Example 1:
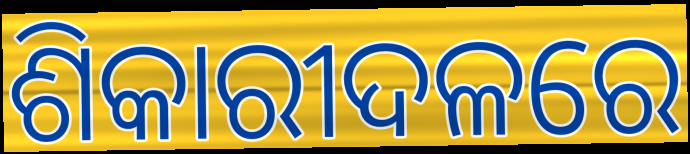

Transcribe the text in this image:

ଶିକାରୀଦଳରେ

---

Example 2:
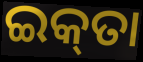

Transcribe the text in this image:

ଇକ୍‌ତା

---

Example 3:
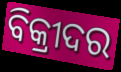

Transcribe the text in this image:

ବିକ୍ରୀଦର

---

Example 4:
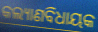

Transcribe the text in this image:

କଲ୍ୟାଣବିଧାୟକ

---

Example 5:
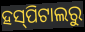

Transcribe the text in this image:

ହସ୍‌ପିଟାଲରୁ